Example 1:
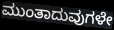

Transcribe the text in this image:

ಮುಂತಾದುವುಗಳೇ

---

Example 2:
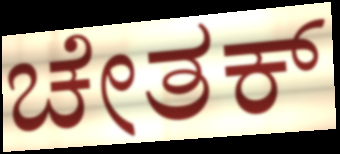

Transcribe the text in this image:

ಚೇತಕ್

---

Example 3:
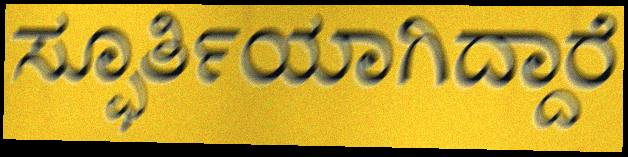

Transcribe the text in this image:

ಸ್ಫೂರ್ತಿಯಾಗಿದ್ದಾರೆ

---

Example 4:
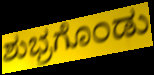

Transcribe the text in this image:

ಶುಭ್ರಗೊಂಡು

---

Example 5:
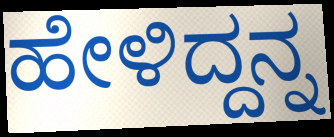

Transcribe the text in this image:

ಹೇಳಿದ್ದನ್ನ